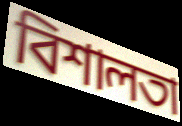
বিশালতা